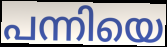
പന്നിയെ